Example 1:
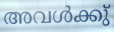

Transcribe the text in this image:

അവൾക്കു്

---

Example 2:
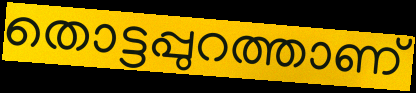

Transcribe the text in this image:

തൊട്ടപ്പുറത്താണ്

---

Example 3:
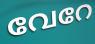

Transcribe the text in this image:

വേറേ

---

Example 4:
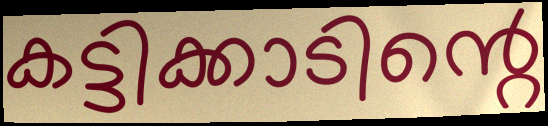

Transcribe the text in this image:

കട്ടിക്കാടിന്റെ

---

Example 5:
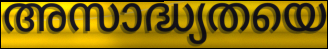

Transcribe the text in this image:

അസാദ്ധ്യതയെ